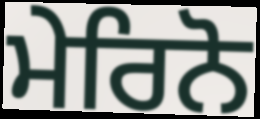
ਮੇਰਿਨੋ